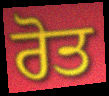
ਰੋਤ